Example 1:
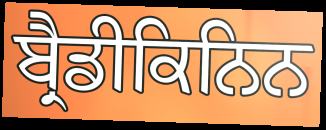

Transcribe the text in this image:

ਬ੍ਰੈਡੀਕਿਨਿਨ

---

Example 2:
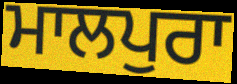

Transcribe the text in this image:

ਮਾਲਪੁਰਾ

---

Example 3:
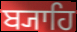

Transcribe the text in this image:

ਬ੍ਯਾਹਿ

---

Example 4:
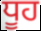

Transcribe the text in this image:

ਧੂਹ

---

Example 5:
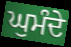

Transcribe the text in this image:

ਘੁਮੰਦੇ